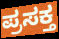
ಪ್ರಸಕ್ತ